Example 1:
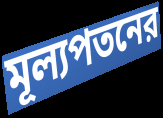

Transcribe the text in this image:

মূল্যপতনের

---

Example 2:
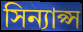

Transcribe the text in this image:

সিন্যাপ্স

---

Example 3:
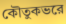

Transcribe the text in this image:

কৌতুকভরে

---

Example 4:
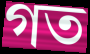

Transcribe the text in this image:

গত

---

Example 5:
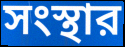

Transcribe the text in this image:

সংস্থার